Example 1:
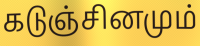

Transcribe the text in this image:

கடுஞ்சினமும்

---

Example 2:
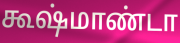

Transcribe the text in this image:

கூஷ்மாண்டா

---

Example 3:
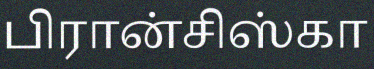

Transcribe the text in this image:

பிரான்சிஸ்கா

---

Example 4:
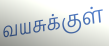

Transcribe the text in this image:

வயசுக்குள்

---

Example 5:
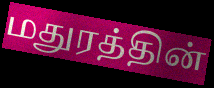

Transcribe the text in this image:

மதுரத்தின்